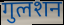
गुलशन